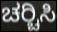
ಚರ‍್ಚಿಸಿ